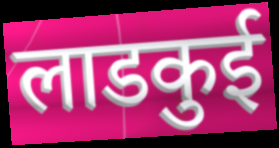
लाडकुई